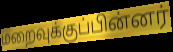
மறைவுக்குப்பின்னர்